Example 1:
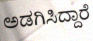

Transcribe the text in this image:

ಅಡಗಿಸಿದ್ದಾರೆ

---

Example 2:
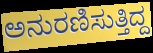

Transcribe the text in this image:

ಅನುರಣಿಸುತ್ತಿದ್ದ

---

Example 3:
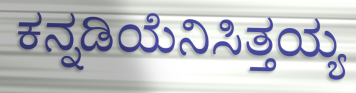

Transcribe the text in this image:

ಕನ್ನಡಿಯೆನಿಸಿತ್ತಯ್ಯ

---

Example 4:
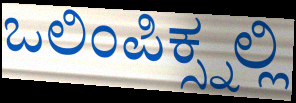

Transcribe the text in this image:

ಒಲಿಂಪಿಕ್ಸ್ನಲ್ಲಿ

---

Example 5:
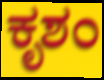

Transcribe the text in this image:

ಕೃಶಂ